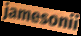
jamesonii